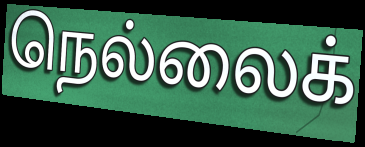
நெல்லைக்